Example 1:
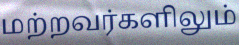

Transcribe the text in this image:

மற்றவர்களிலும்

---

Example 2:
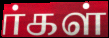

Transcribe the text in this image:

ர்கள்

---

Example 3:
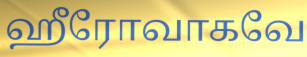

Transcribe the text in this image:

ஹீரோவாகவே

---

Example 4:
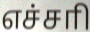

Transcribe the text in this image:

எச்சரி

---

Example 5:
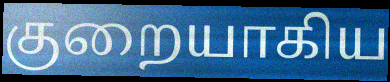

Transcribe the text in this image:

குறையாகிய